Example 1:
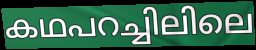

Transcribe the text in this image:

കഥപറച്ചിലിലെ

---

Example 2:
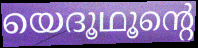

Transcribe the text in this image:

യെദൂഥൂന്റെ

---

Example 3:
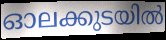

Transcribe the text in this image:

ഓലക്കുടയിൽ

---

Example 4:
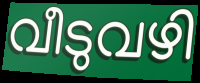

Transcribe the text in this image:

വീടുവഴി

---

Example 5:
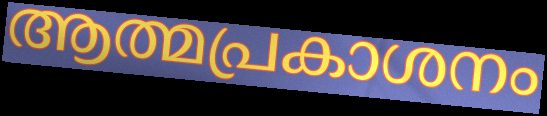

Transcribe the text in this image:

ആത്മപ്രകാശനം